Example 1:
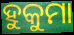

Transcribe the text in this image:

ହୁକୁମା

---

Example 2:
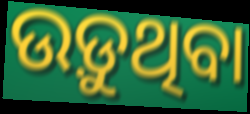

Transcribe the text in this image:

ଉଡ଼ୁଥିବା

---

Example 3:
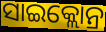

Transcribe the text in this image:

ସାଇକ୍ଲୋନ୍ର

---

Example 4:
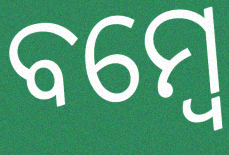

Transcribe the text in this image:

ବମ୍ୱେ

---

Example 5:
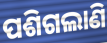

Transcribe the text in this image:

ପଶିଗଲାଣି